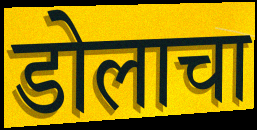
डोलाचा